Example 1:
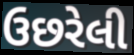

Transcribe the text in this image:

ઉછરેલી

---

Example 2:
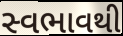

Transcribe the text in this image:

સ્વભાવથી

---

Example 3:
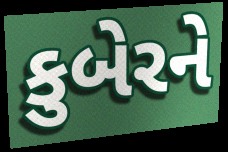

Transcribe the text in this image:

કુબેરને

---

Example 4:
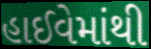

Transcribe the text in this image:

હાઈવેમાંથી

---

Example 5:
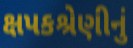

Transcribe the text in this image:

ક્ષપકશ્રેણીનું